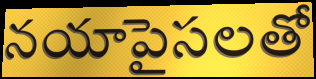
నయాపైసలతో